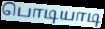
பொடியாடி